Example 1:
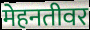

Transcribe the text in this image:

मेहनतीवर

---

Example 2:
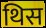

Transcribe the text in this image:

थिस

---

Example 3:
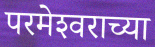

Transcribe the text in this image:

परमेश्‍वराच्या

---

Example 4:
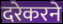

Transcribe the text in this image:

दरेकरने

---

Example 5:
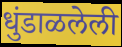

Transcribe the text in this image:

धुंडाळलेली